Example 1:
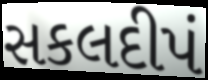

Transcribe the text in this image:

સકલદીપં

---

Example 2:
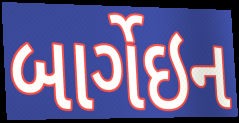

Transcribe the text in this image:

બાર્ગેઇન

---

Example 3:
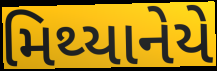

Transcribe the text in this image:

મિથ્યાનેયે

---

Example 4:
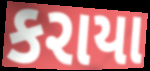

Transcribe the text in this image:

કરાયા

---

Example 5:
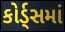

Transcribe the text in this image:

કોર્ડ્સમાં